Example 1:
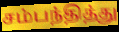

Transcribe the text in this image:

சம்பந்தித்து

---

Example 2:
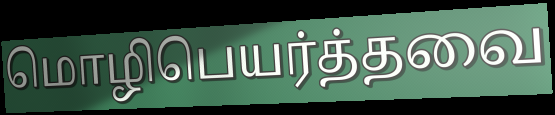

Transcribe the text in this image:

மொழிபெயர்த்தவை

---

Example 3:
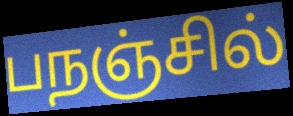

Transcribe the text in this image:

பநஞ்சில்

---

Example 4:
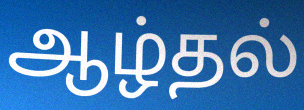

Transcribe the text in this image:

ஆழ்தல்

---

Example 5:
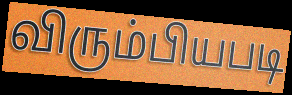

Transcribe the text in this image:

விரும்பியபடி